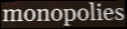
monopolies